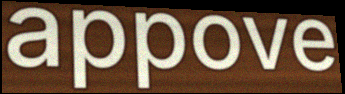
appove